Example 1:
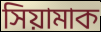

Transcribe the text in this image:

সিয়ামাক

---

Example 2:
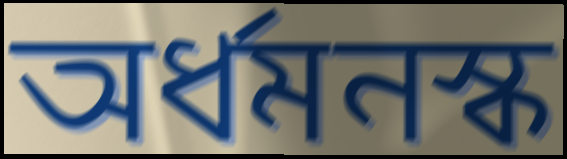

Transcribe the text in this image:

অর্ধমনস্ক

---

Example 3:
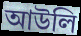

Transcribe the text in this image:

আউলি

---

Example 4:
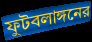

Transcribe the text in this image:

ফুটবলাঙ্গনের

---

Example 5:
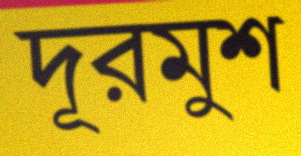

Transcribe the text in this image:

দূরমুশ